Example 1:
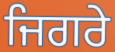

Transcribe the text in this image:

ਜਿਗਰੇ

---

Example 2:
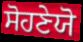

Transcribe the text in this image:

ਸੋਹਣੇਯੋ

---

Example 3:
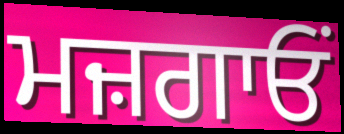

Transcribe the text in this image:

ਮਜ਼ਗਾਓਂ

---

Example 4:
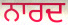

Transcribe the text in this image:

ਨਾਰਦ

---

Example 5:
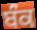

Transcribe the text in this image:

ਬੰਕ